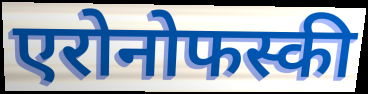
एरोनोफस्की